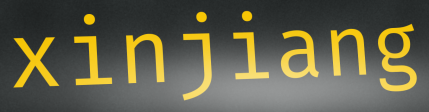
xinjiang